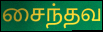
சைந்தவ